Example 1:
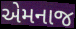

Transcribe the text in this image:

એમનાજ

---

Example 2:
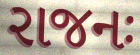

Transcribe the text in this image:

રાજનઃ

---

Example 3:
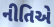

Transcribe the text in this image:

નીતિએ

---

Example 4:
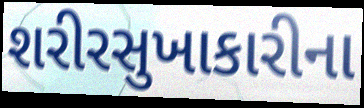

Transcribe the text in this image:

શરીરસુખાકારીના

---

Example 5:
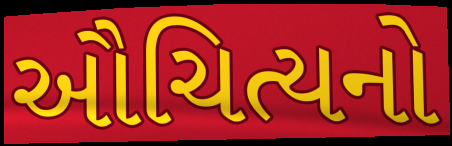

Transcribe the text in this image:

ઔચિત્યનો